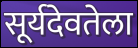
सूर्यदेवतेला